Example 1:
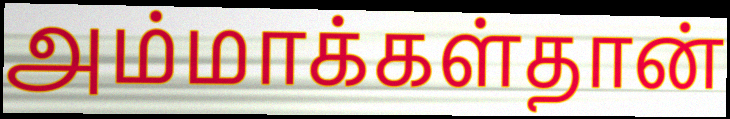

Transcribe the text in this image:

அம்மாக்கள்தான்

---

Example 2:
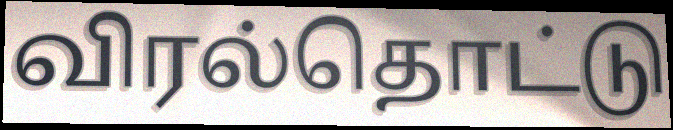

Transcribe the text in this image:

விரல்தொட்டு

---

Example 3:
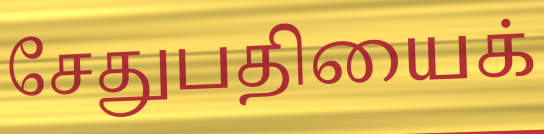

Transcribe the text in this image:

சேதுபதியைக்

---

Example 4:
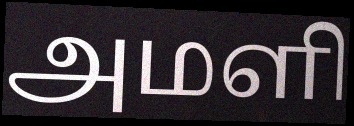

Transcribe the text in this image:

அமளி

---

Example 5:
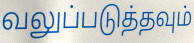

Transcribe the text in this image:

வலுப்படுத்தவும்